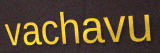
vachavu